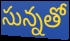
సున్నతో